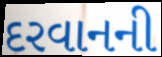
દરવાનની